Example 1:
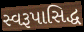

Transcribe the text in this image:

સ્વરૂપાસિદ્ધ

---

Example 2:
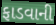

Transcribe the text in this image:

ફાડવાની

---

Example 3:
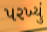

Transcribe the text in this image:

પરખ્યું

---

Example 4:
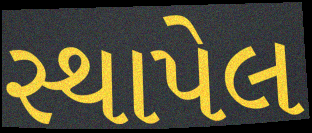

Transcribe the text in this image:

સ્થાપેલ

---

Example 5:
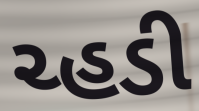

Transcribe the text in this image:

ચ્હડી